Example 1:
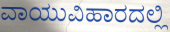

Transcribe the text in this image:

ವಾಯುವಿಹಾರದಲ್ಲಿ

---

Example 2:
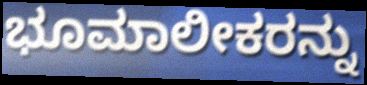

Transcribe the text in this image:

ಭೂಮಾಲೀಕರನ್ನು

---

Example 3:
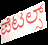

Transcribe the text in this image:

ಪೆಟಲ್ಸ್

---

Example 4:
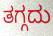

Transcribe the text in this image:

ತಗ್ಗದು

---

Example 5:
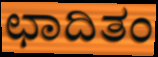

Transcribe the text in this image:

ಛಾದಿತಂ